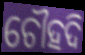
ଚୌହଦି